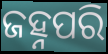
ଜହ୍ନପରି